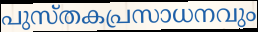
പുസ്തകപ്രസാധനവും